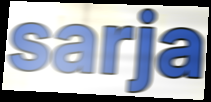
sarja